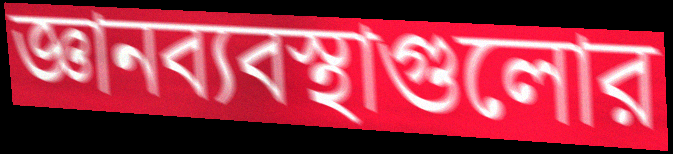
জ্ঞানব্যবস্থাগুলোর